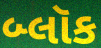
બ્લૉક